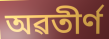
অৱতীৰ্ণ